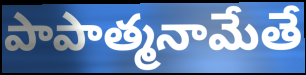
పాపాత్మనామేతే